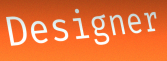
Designer